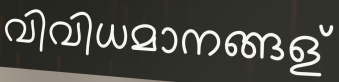
വിവിധമാനങ്ങള്